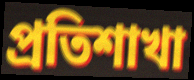
প্রতিশাখা